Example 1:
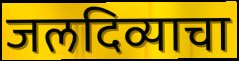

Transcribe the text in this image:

जलदिव्याचा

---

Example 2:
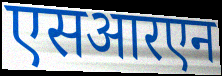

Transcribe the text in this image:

एसआरएन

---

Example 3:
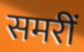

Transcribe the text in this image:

समरीं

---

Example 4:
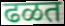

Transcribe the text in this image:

ढळत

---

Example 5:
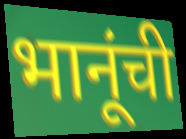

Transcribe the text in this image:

भानूंची